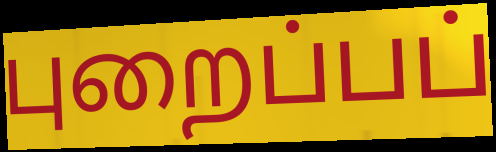
புறைப்பப்